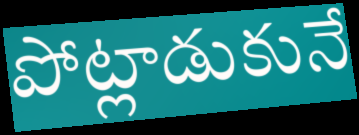
పోట్లాడుకునే